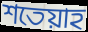
শতেয়াহ